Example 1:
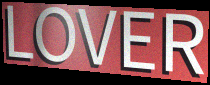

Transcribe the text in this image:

LOVER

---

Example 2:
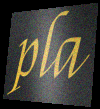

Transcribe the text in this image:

pla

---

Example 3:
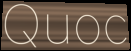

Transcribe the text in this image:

Quoc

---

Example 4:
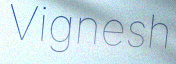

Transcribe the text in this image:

Vignesh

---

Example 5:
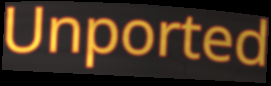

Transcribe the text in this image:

Unported